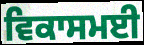
ਵਿਕਾਸਮਈ